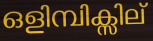
ഒളിമ്പിക്സില്